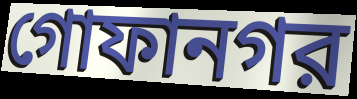
গোফানগর